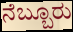
ನೆಬ್ಬೂರು